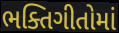
ભક્તિગીતોમાં